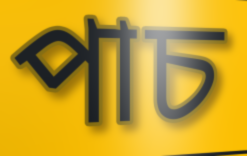
পাচ